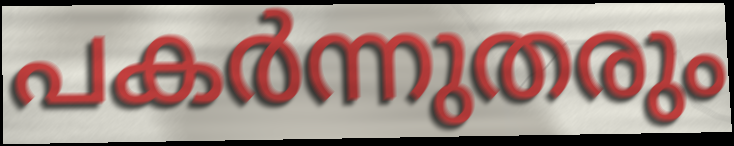
പകർന്നുതരും